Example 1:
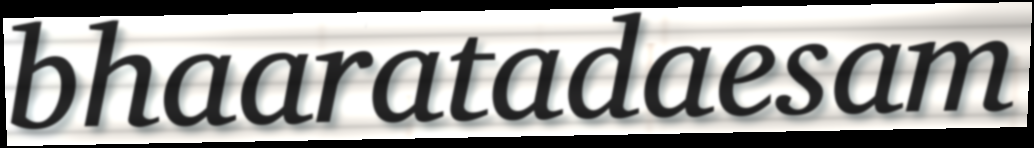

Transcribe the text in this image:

bhaaratadaesam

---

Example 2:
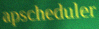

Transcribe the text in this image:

apscheduler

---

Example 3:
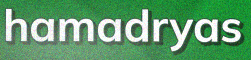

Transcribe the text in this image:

hamadryas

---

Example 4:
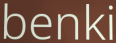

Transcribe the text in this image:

benki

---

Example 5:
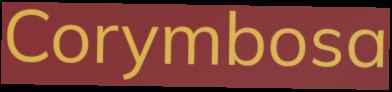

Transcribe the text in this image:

Corymbosa